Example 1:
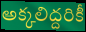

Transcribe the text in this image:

అక్కలిద్దరికీ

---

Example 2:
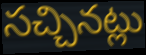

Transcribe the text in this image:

సచ్చినట్లు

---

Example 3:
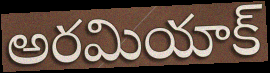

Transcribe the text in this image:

అరమియాక్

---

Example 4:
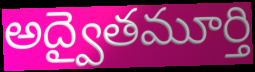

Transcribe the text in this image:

అద్వైతమూర్తి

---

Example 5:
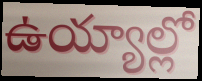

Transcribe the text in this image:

ఉయ్యాల్లో